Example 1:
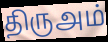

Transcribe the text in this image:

திருஅம்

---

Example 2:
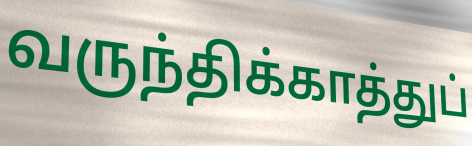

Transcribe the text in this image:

வருந்திக்காத்துப்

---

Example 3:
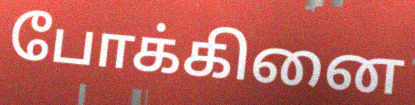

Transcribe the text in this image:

போக்கினை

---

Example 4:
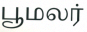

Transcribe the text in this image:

பூமலர்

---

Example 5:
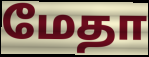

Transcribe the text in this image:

மேதா